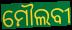
ମୌଲବୀ